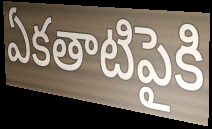
ఏకతాటిపైకి